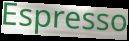
Espresso